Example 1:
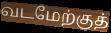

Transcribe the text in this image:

வடமேற்குத்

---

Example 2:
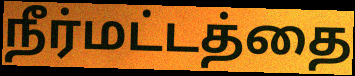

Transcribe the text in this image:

நீர்மட்டத்தை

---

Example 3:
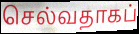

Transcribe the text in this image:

செல்வதாகப்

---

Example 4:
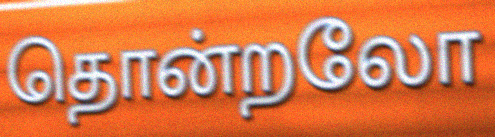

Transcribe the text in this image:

தொன்றலோ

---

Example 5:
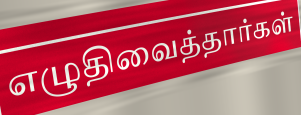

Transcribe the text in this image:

எழுதிவைத்தார்கள்